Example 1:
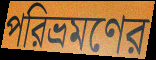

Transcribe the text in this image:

পরিভ্রমণের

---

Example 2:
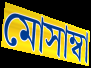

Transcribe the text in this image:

মোসাম্বা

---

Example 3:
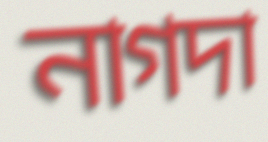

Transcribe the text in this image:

নাগদা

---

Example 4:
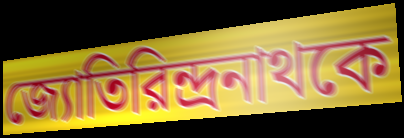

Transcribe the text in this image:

জ্যোতিরিন্দ্রনাথকে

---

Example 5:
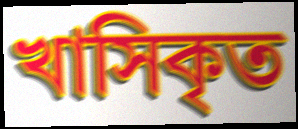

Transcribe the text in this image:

খাসিকৃত